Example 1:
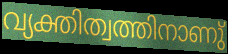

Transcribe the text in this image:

വ്യക്തിത്വത്തിനാണു്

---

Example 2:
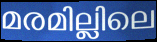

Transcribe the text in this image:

മരമില്ലിലെ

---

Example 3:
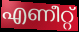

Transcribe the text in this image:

എണീറ്റ്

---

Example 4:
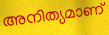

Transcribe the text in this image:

അനിത്യമാണ്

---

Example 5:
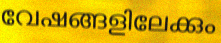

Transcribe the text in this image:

വേഷങ്ങളിലേക്കും